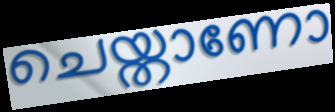
ചെയ്താണോ